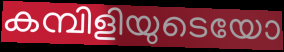
കമ്പിളിയുടെയോ